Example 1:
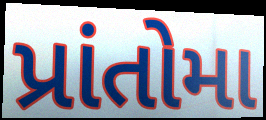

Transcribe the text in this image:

પ્રાંતોમા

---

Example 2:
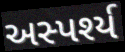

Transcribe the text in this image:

અસ્પર્શ્ય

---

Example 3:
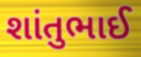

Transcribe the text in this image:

શાંતુભાઈ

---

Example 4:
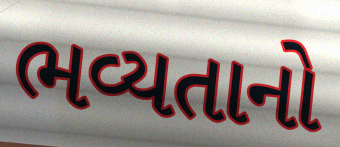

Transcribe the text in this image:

ભવ્યતાનો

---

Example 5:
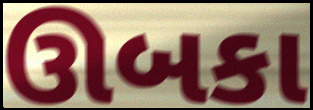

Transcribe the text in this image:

ઊબકા